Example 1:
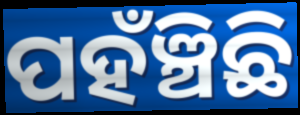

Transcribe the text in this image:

ପହଁଞ୍ଚିଛି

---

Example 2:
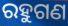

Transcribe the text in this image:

ରହୁଗଣ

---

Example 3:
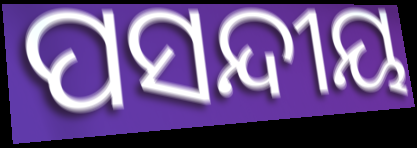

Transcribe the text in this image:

ପସନ୍ଦୀୟ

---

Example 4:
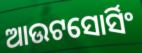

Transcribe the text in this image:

ଆଉଟସୋର୍ସିଂ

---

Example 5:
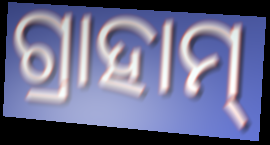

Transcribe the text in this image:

ଗ୍ରାହାମ୍